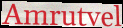
Amrutvel